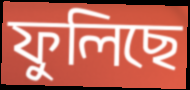
ফুলিছে